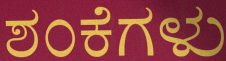
ಶಂಕೆಗಳು